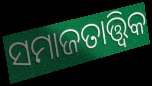
ସମାଜତାତ୍ତ୍ୱିକ